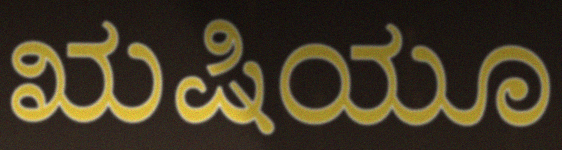
ಋಷಿಯೂ